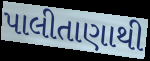
પાલીતાણાથી